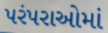
પરંપરાઓમાં